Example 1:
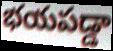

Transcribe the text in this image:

భయపడ్డా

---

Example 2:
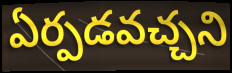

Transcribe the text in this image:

ఏర్పడవచ్చని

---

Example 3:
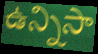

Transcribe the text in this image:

ఉన్నిసా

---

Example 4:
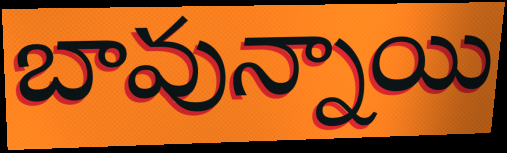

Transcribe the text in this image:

బావున్నాయి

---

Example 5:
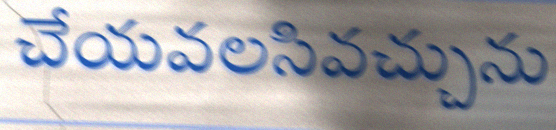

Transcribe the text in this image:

చేయవలసివచ్చును